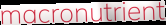
macronutrient